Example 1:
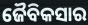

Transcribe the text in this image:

ଜୈବିକସାର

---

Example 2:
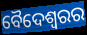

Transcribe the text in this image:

ବୈଦେଶ୍ୱରର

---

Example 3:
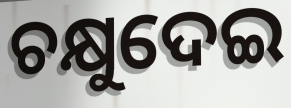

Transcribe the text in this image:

ଚକ୍ଷୁଦେଇ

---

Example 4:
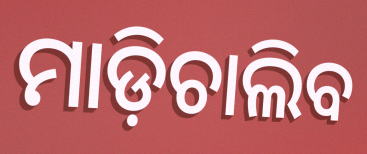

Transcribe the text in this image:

ମାଡ଼ିଚାଲିବ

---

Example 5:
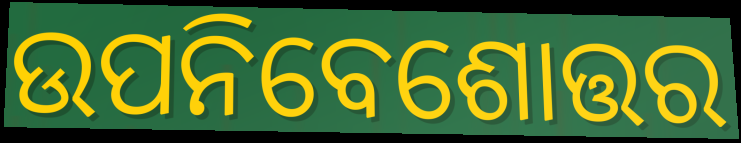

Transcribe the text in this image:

ଉପନିବେଶୋତ୍ତର